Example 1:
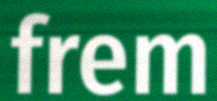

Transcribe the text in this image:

frem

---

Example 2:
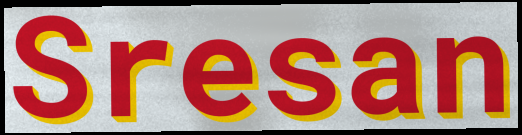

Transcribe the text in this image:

Sresan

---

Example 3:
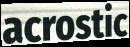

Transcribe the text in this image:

acrostic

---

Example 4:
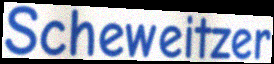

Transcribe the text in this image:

Scheweitzer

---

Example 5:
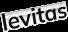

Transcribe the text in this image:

levitas